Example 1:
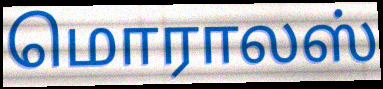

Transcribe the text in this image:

மொராலஸ்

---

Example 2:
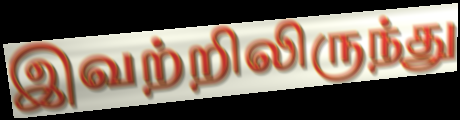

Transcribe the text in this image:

இவற்றிலிருந்து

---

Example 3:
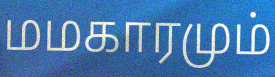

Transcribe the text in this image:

மமகாரமும்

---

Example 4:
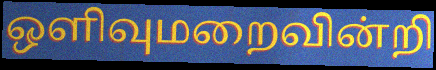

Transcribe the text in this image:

ஒளிவுமறைவின்றி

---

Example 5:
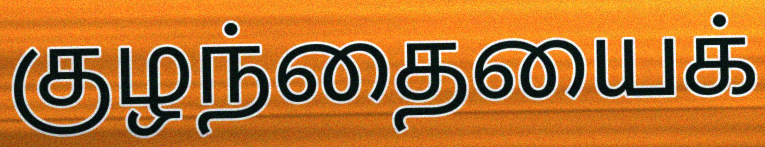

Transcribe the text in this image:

குழந்தையைக்